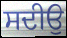
ਸਦੀਉ